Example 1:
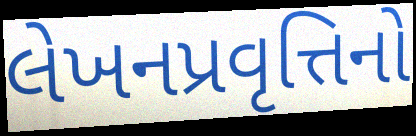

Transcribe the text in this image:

લેખનપ્રવૃત્તિનો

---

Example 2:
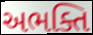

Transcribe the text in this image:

અભક્તિ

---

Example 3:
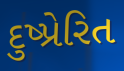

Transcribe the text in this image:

દુષ્પ્રેરિત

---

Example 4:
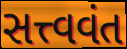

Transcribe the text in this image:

સત્ત્વવંત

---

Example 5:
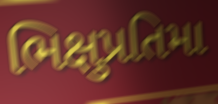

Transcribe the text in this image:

ભિક્ષુપ્રતિમા